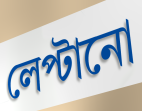
লেপ্টানো